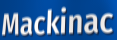
Mackinac